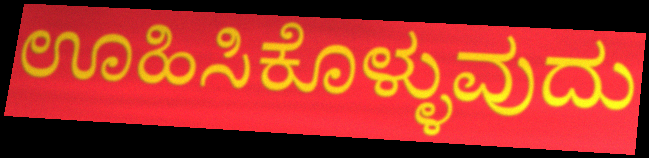
ಊಹಿಸಿಕೊಳ್ಳುವುದು